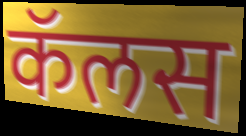
कॅलस